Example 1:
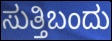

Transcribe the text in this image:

ಸುತ್ತಿಬಂದು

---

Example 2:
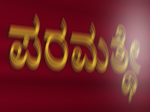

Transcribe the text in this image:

ಪರಮತ್ಥೇ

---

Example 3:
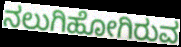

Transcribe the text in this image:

ನಲುಗಿಹೋಗಿರುವ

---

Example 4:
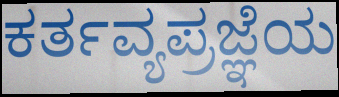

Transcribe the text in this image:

ಕರ್ತವ್ಯಪ್ರಜ್ಞೆಯ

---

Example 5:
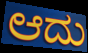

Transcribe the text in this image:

ಆದು